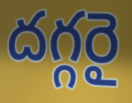
దగ్గరై